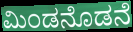
ಮಿಂಡನೊಡನೆ